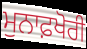
ਮੁਨਾਫ਼ਖੋਰੀ